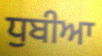
ਧੁਬੀਆ